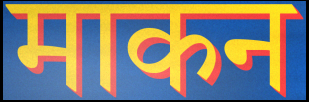
माकन